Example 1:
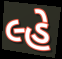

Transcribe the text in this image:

લ્હે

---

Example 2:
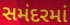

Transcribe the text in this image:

સમંદરમાં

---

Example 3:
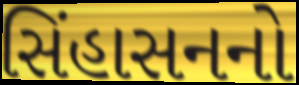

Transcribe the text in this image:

સિંહાસનનો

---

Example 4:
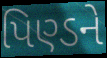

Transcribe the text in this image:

પિણ્ડને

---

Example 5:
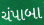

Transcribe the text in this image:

ચંપાબા